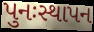
પુનઃસ્થાપન